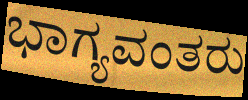
ಭಾಗ್ಯವಂತರು